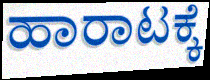
ಹಾರಾಟಕ್ಕೆ